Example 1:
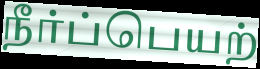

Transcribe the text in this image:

நீர்ப்பெயற்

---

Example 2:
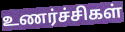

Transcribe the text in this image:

உணர்ச்சிகள்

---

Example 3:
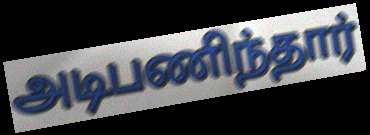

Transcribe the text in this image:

அடிபணிந்தார்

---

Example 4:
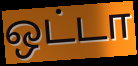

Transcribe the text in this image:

ஒட்டா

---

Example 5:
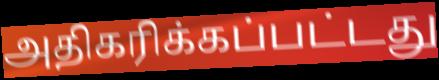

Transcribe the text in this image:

அதிகரிக்கப்பட்டது